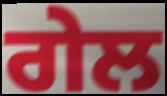
ਗੇਲ